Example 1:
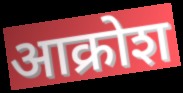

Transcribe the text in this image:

आक्रोश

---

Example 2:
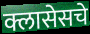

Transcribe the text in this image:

क्लासेसचे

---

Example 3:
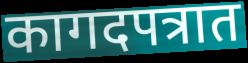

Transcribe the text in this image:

कागदपत्रात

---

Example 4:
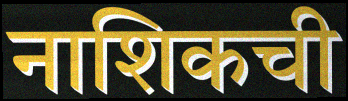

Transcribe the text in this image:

नाशिकची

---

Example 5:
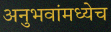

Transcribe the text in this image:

अनुभवांमध्येच